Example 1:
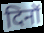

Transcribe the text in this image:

दिनों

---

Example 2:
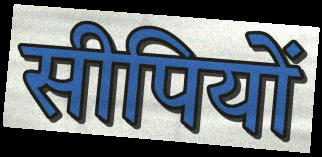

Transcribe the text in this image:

सीपियों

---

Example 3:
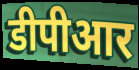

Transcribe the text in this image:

डीपीआर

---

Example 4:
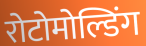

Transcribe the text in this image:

रोटोमोल्डिंग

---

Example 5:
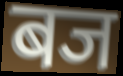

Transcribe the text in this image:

बज